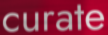
curate